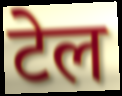
टेल